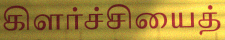
கிளர்ச்சியைத்